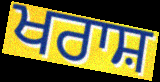
ਖਰਾਸ਼